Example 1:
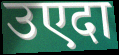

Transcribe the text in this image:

उएदा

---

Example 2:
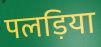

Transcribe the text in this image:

पलड़िया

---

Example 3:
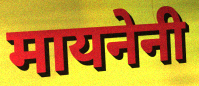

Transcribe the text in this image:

मायनेनी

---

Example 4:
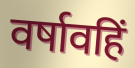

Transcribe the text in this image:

वर्षावहिं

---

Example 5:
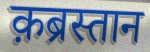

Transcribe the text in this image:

क़ब्रस्तान